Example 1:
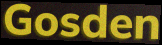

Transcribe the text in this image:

Gosden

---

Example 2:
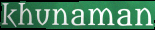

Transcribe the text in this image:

khunaman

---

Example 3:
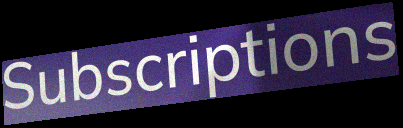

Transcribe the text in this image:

Subscriptions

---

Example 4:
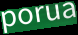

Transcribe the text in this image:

porua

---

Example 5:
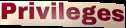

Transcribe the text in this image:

Privileges